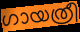
ഗായത്രീ